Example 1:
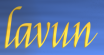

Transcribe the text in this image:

lavun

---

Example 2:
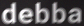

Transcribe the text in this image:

debba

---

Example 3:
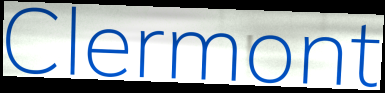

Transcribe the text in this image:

Clermont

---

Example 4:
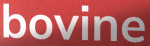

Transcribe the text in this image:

bovine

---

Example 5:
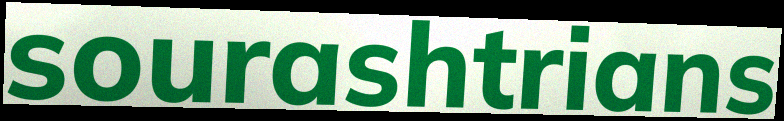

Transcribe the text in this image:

sourashtrians